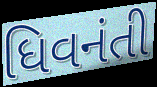
ધિવનંતી